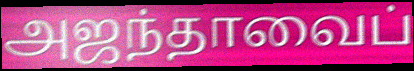
அஜந்தாவைப்